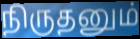
நிருதனும்